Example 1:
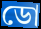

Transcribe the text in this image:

ডো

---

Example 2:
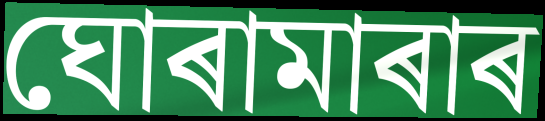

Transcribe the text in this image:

ঘোৰামাৰাৰ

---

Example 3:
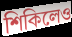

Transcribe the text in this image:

শিকিলেও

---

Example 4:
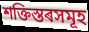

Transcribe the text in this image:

শক্তিস্তৰসমূহ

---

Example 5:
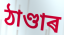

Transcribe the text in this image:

ঠাণ্ডাৰ